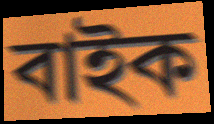
বাইক